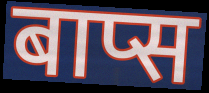
बाप्स